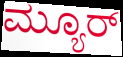
ಮ್ಯೂರ್